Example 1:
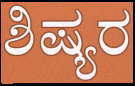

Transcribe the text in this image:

ಶಿಷ್ಯರ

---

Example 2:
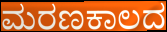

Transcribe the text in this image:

ಮರಣಕಾಲದ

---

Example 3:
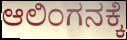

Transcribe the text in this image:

ಆಲಿಂಗನಕ್ಕೆ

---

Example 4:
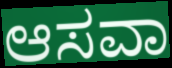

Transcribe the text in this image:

ಆಸವಾ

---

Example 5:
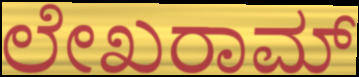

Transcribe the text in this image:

ಲೇಖರಾಮ್